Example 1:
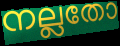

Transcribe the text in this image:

നല്ലതോ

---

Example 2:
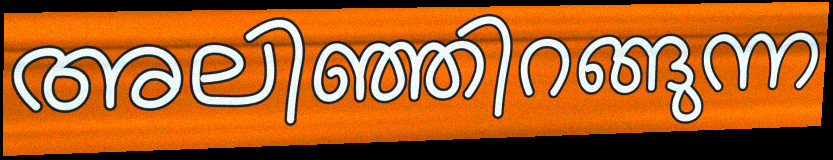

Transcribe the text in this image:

അലിഞ്ഞിറങ്ങുന്ന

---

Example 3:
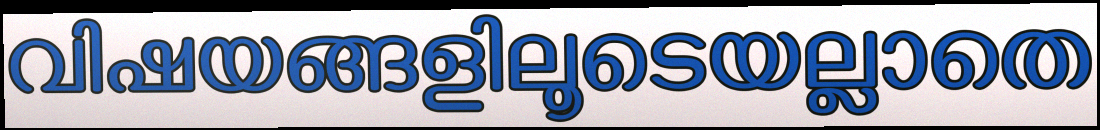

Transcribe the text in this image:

വിഷയങ്ങളിലൂടെയല്ലാതെ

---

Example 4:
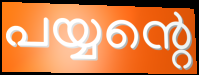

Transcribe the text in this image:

പയ്യന്റെ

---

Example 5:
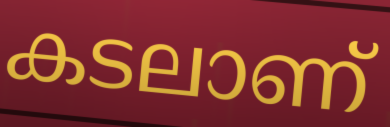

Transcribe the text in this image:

കടലാണ്